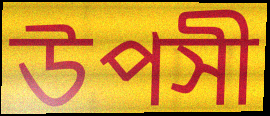
উপসী